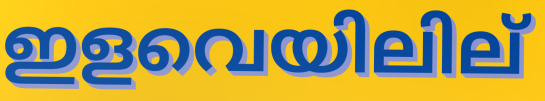
ഇളവെയിലില്